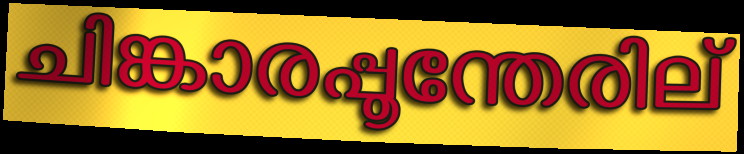
ചിങ്കാരപ്പൂന്തേരില്